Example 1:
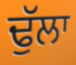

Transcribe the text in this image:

ਢੁੱਲਾ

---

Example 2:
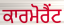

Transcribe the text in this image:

ਕਾਰਮੋਰੈਂਟ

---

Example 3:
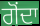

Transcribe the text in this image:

ਗੋਂਦਾ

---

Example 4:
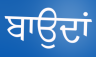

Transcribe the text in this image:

ਬਾਉਦਾਂ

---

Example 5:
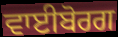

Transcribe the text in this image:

ਵਾਈਬੋਰਗ